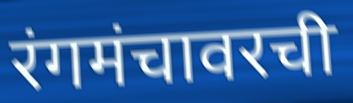
रंगमंचावरची